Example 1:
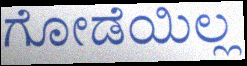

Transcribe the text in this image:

ಗೋಡೆಯಿಲ್ಲ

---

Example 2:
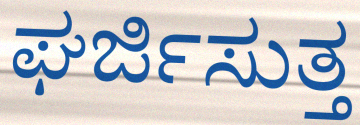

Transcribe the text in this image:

ಘರ್ಜಿಸುತ್ತ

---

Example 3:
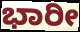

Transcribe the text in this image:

ಭಾರೀ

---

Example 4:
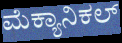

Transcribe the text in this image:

ಮೆಕ್ಯಾನಿಕಲ್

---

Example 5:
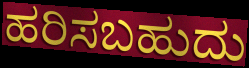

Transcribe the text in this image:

ಹರಿಸಬಹುದು